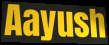
Aayush